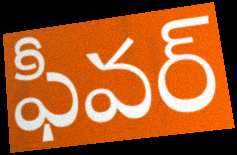
ఫీవర్